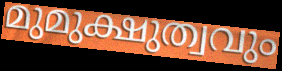
മുമുക്ഷുത്വവും